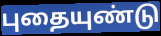
புதையுண்டு